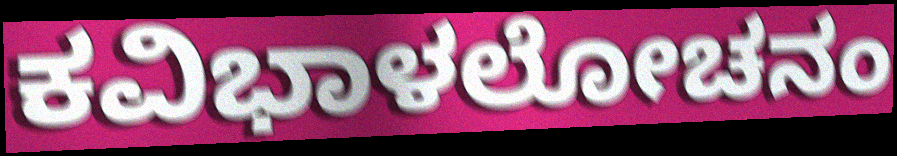
ಕವಿಭಾಳಲೋಚನಂ